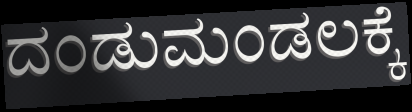
ದಂಡುಮಂಡಲಕ್ಕೆ